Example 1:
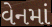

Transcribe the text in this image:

વેનમાં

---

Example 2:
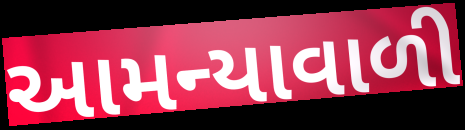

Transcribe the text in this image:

આમન્યાવાળી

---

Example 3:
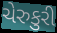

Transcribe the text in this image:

ચેરુકુરી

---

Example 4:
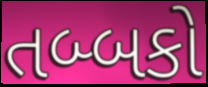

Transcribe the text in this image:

તબ્બકો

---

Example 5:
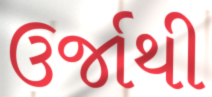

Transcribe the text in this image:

ઉર્જાથી